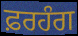
ਫ਼ਰਹੰਗ